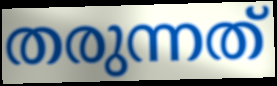
തരുന്നത്